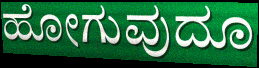
ಹೋಗುವುದೂ